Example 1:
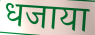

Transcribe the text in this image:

धजाया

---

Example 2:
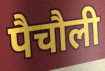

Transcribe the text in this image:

पैचौली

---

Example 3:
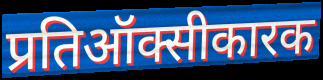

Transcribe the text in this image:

प्रतिऑक्सीकारक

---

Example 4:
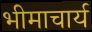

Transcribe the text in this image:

भीमाचार्य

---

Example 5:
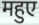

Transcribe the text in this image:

महुए